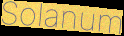
Solanum